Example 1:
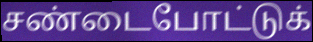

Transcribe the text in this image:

சண்டைபோட்டுக்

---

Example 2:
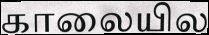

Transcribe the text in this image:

காலையில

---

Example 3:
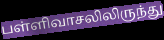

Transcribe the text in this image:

பள்ளிவாசலிலிருந்து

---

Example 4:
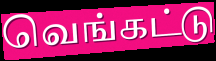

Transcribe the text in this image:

வெங்கட்டு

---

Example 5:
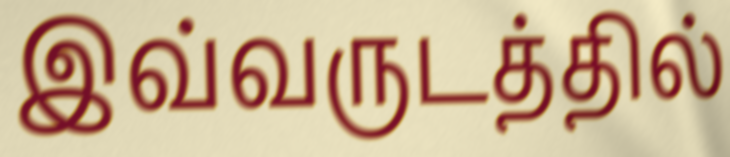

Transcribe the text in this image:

இவ்வருடத்தில்